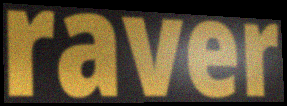
raver